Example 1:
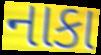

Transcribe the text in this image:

નાકા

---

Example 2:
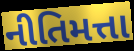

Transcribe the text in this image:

નીતિમત્તા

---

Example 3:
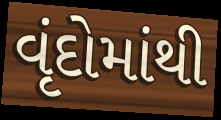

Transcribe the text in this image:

વૃંદોમાંથી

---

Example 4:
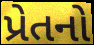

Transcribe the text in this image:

પ્રેતનો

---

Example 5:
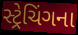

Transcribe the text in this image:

સ્ટ્રેચિંગના